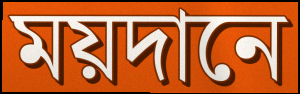
ময়দানে